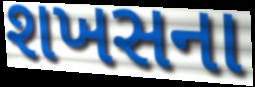
શખસના